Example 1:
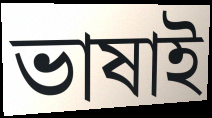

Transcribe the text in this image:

ভাষাই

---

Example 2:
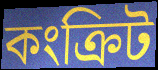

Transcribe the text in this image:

কংক্ৰিট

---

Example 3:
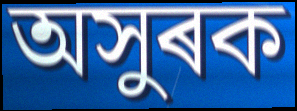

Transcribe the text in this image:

অসুৰক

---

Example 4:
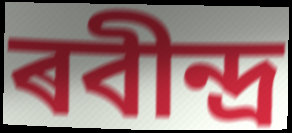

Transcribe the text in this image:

ৰবীন্দ্ৰ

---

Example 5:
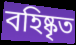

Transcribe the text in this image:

বহিষ্কৃত